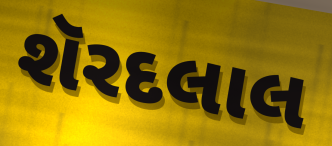
શૅરદલાલ